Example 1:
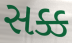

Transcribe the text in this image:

સક્ક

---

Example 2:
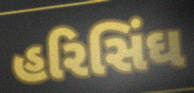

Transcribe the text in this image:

હરિસિંઘ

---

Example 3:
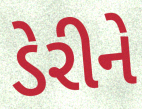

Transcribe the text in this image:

ડેરીને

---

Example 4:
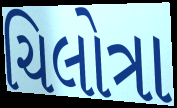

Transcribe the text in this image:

ચિલોત્રા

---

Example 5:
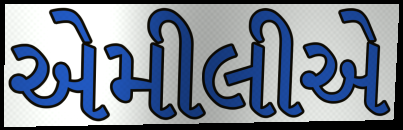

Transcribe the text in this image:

એમીલીએ